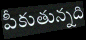
పీకుతున్నది